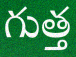
గుత్త